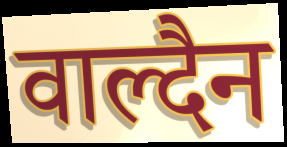
वाल्दैन